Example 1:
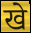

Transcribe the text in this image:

खे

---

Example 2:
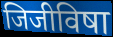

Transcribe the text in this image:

जिजीविषा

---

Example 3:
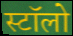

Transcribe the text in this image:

स्टॉलो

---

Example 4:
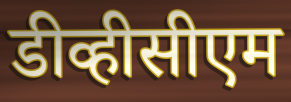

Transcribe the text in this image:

डीव्हीसीएम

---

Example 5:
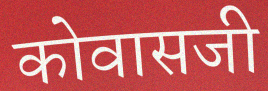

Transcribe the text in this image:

कोवासजी